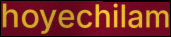
hoyechilam